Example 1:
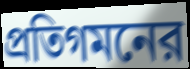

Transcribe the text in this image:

প্রতিগমনের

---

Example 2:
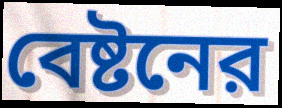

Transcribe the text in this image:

বেষ্টনের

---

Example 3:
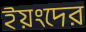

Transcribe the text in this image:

ইয়ংদের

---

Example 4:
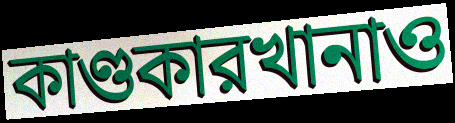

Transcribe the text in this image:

কাণ্ডকারখানাও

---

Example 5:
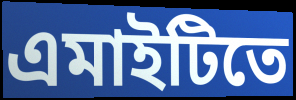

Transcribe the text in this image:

এমাইটিতে